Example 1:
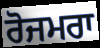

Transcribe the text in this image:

ਰੋਜਮਰਾ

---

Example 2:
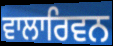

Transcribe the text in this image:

ਵਾਲਾਰਿਵਨ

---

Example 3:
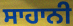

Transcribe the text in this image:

ਸਾਹਾਨੀ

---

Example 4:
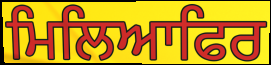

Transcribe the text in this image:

ਮਿਲਿਆਫਿਰ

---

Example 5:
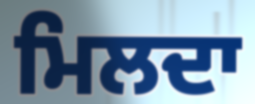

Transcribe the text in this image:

ਮਿਲਦਾ